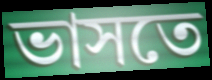
ভাসতে